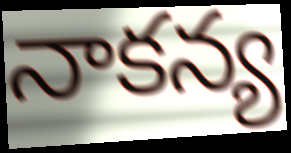
నాకన్య